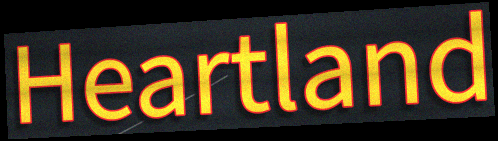
Heartland